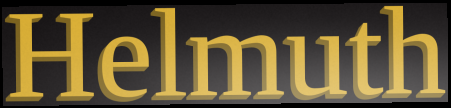
Helmuth